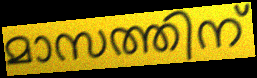
മാസത്തിന്